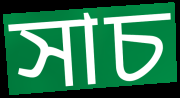
সাচ